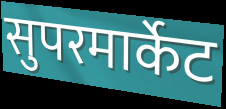
सुपरमार्केट